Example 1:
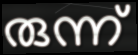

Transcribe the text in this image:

രുന്ന്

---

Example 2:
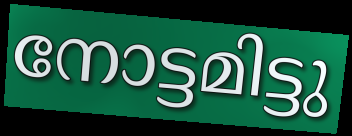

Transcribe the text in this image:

നോട്ടമിട്ടു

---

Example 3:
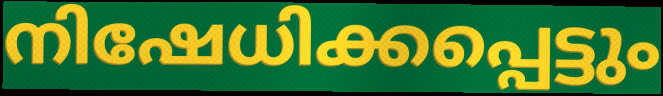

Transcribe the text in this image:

നിഷേധിക്കപ്പെട്ടും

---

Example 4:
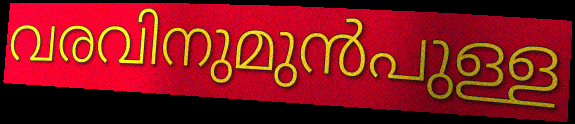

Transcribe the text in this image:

വരവിനുമുൻപുള്ള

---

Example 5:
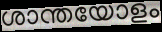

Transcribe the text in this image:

ശാന്തയോളം